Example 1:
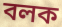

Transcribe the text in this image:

বলক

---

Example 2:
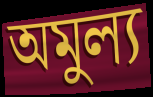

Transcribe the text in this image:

অমুল্য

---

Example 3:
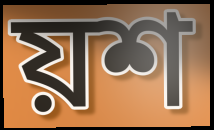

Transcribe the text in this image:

য়শ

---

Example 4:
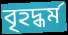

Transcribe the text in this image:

বৃহদ্ধৰ্ম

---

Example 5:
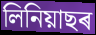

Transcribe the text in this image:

লিনিয়াছৰ